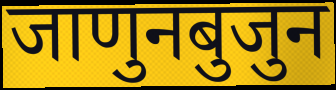
जाणुनबुजुन